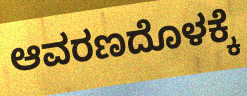
ಆವರಣದೊಳಕ್ಕೆ